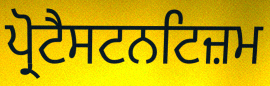
ਪ੍ਰੋਟੈਸਟਨਟਿਜ਼ਮ